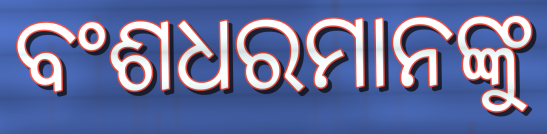
ବଂଶଧରମାନଙ୍କୁ